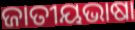
ଜାତୀୟଭାଷା